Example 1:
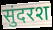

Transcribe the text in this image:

सुंदरश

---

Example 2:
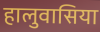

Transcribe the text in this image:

हालुवासिया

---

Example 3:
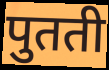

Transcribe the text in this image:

पुतती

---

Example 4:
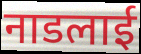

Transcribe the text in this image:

नाडलाई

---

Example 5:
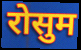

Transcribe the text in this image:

रोसुम